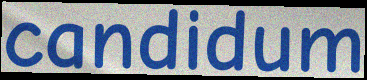
candidum